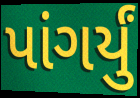
પાંગર્યું